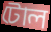
টোল